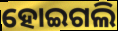
ହୋଇଗଲି